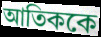
আতিককে